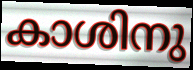
കാശിനു